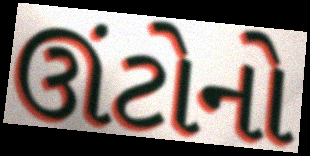
ઊંટોનો